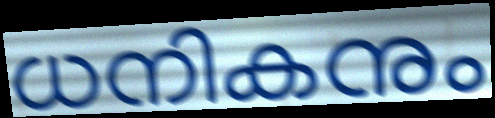
ധനികനും